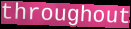
throughout